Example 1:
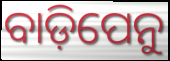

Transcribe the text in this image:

ବାଡ଼ିପେନୁ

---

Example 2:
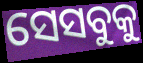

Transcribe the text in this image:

ସେସବୁକୁ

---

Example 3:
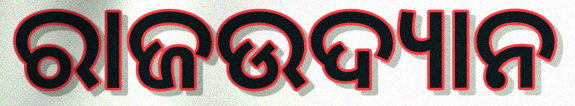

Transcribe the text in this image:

ରାଜଉଦ୍ୟାନ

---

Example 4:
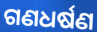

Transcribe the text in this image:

ଗଣଧର୍ଷଣ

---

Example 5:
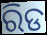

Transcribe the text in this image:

ରିଡ